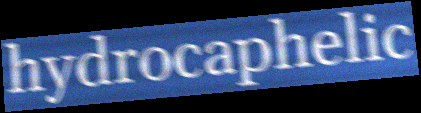
hydrocaphelic